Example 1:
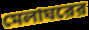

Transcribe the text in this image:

মেলাঘরের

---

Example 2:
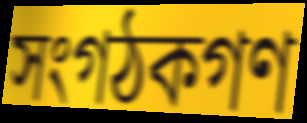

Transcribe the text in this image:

সংগঠকগণ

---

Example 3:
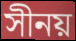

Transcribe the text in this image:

সীনয়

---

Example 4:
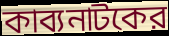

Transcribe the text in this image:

কাব্যনাটকের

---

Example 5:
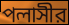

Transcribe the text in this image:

পলাসীর